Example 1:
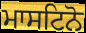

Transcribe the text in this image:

ਮਾਸਟਿਨੋ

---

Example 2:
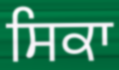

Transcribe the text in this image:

ਸਿਕਾ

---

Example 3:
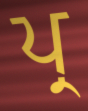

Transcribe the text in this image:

ਪ੍ਰ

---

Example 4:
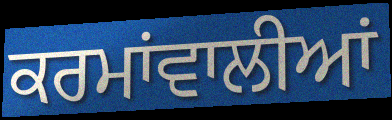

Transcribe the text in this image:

ਕਰਮਾਂਵਾਲੀਆਂ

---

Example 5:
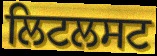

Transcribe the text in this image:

ਲਿਟਲਸਟ